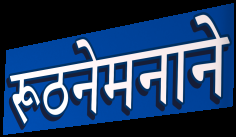
रूठनेमनाने